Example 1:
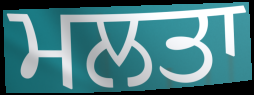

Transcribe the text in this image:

ਮਲਤਾ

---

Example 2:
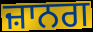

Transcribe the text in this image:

ਜ਼ਾਨਗ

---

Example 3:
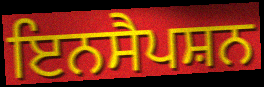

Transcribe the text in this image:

ਇਨਸੈਪਸ਼ਨ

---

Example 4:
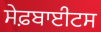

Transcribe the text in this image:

ਸੇਫ਼ਬਾਈਟਸ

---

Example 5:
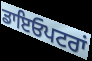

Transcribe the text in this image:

ਡਾਇਓਪਟਰਾਂ